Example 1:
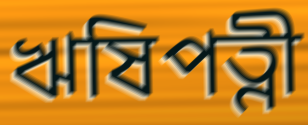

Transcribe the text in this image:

ঋষিপত্নী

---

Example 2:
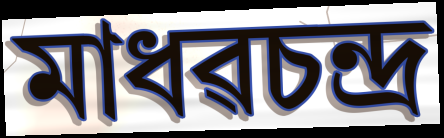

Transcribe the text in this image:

মাধৱচন্দ্ৰ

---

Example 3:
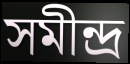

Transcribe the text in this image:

সমীন্দ্ৰ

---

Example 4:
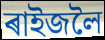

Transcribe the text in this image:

ৰাইজলৈ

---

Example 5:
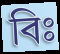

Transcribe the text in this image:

বিঃ